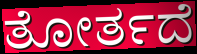
ತೋರ್ತದೆ